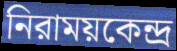
নিরাময়কেন্দ্র